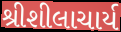
શ્રીશીલાચાર્ય